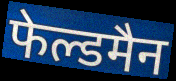
फेल्डमैन